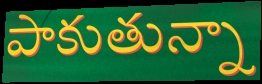
పాకుతున్నా